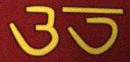
ওত